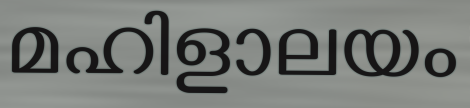
മഹിളാലയം